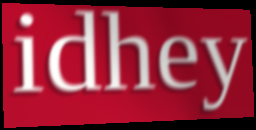
idhey